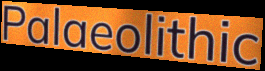
Palaeolithic